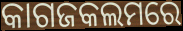
କାଗଜକଲମରେ